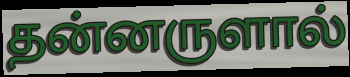
தன்னருளால்